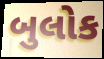
બુલોક